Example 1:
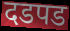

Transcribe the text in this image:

दडपड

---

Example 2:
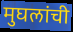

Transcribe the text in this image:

मुघलांची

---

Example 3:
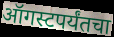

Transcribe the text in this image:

ऑगस्टपर्यंतचा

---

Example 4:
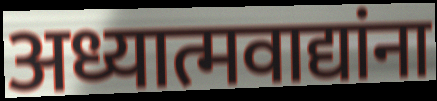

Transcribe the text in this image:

अध्यात्मवाद्यांना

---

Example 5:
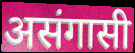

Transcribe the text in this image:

असंगासी